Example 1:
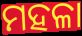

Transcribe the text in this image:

ମହଳା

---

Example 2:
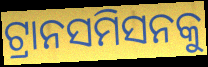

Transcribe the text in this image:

ଟ୍ରାନସମିସନକୁ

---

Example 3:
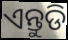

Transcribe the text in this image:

ଏନ୍ତୁଡି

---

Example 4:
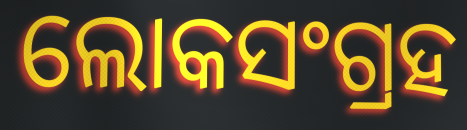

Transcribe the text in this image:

ଲୋକସଂଗ୍ରହ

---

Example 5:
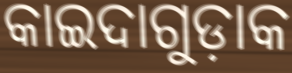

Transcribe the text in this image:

କାଇଦାଗୁଡ଼ାକ